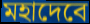
মহাদেবে